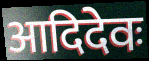
आदिदेवः